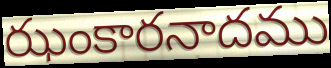
ఝంకారనాదము